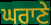
ਘਰਾਣੇ